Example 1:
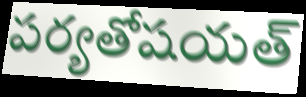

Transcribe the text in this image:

పర్యతోషయత్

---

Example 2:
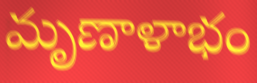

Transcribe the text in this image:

మృణాళాభం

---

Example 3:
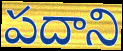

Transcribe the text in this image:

పదాని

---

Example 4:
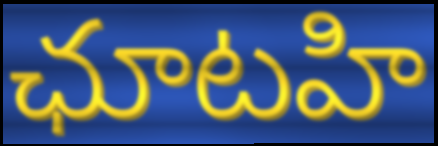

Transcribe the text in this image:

ఛూటహి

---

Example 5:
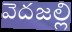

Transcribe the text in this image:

వెదజల్లి